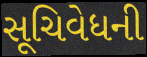
સૂચિવેધની